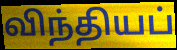
விந்தியப்